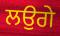
ਲਉਗੇ